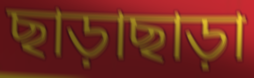
ছাড়াছাড়া